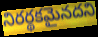
నిరర్థకమైనదని